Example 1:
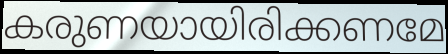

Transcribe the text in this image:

കരുണയായിരിക്കണമേ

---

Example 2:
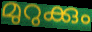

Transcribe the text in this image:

മുറുക്കും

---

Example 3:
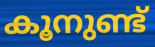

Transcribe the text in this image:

കൂനുണ്ട്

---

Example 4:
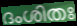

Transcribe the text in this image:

ദംശിതഃ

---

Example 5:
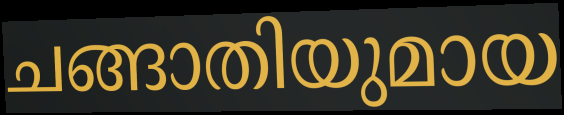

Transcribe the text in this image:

ചങ്ങാതിയുമായ